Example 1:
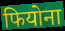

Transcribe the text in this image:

फियोना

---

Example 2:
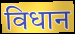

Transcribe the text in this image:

विधान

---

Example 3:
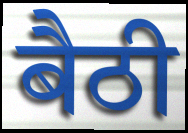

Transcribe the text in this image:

बैठी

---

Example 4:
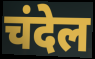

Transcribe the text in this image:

चंदेल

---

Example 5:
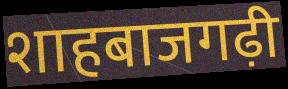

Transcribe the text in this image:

शाहबाजगढ़ी